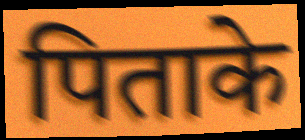
पिताके